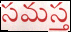
సమస్త